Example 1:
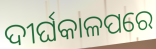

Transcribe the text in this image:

ଦୀର୍ଘକାଳପରେ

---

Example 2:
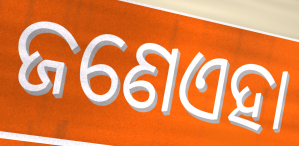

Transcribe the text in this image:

ଜଣେଏହା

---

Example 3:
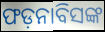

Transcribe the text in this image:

ଫଡ଼ନାବିସଙ୍କ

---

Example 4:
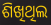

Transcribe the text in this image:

ଶିଖିଥିଲ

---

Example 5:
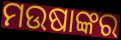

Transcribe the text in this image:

ମଉଷାଙ୍କର